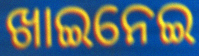
ଖାଇନେଇ